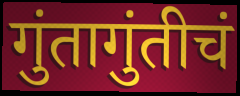
गुंतागुंतीचं